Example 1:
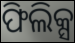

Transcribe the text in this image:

ଫିଲିକ୍ସ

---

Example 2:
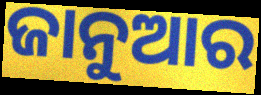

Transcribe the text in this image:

ଜାନୁଆର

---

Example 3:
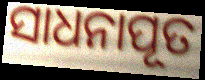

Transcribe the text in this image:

ସାଧନାପୂତ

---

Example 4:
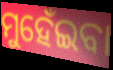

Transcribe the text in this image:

ମୁହେଁଇବା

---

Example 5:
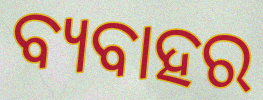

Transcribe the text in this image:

ବ୍ୟବାହର